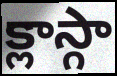
క్లాస్గా